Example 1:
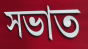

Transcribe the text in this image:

সভাত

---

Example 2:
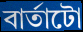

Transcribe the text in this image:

বাৰ্তাটো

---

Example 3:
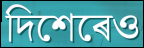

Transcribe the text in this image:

দিশেৰেও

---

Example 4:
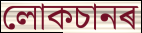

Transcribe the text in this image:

লোকচানৰ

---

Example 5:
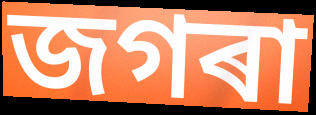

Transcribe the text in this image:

জগৰা